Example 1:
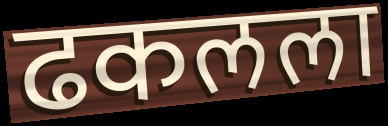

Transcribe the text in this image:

ढकलला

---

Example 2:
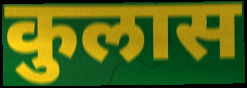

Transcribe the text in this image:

कुलास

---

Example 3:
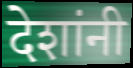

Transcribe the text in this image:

देशांनी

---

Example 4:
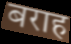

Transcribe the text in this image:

बराह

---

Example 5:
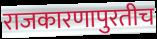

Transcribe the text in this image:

राजकारणापुरतीच